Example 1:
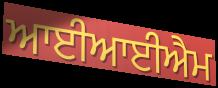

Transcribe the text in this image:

ਆਈਆਈਐਮ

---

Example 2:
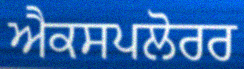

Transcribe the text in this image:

ਐਕਸਪਲੋਰਰ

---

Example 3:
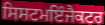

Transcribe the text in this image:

ਸਿਸਟਮਇੰਜੈਕਟਰ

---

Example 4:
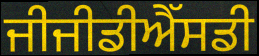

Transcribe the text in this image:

ਜੀਜੀਡੀਐੱਸਡੀ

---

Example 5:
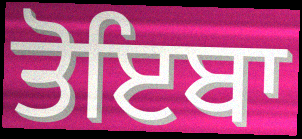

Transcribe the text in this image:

ਤੋਇਬਾ